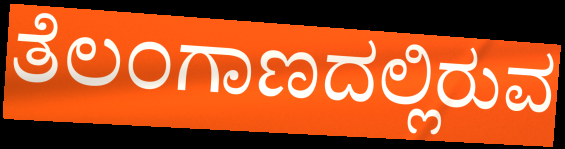
ತೆಲಂಗಾಣದಲ್ಲಿರುವ